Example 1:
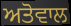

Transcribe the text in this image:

ਅਤੋਵਾਲ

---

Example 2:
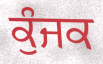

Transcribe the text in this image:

ਕੁੰਜਕ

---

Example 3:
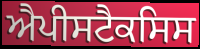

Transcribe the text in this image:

ਐਪੀਸਟੈਕਸਿਸ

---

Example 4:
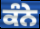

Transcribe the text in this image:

ਕੰਨੇ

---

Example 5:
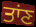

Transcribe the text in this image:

ਤਾਂਣ